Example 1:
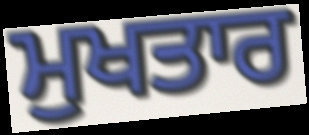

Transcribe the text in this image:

ਮੁਖਤਾਰ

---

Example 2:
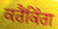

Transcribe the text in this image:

ਕਰੈਂਕਿੰਗ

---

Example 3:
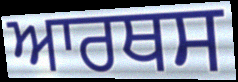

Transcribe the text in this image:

ਆਰਥਸ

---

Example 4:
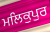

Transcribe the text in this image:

ਮਲਿਕੁਪੁਰ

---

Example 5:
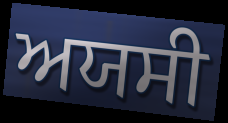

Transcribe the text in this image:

ਅਯਸੀ